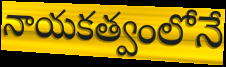
నాయకత్వంలోనే